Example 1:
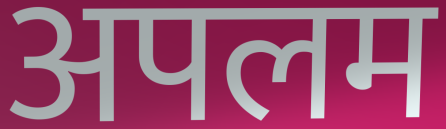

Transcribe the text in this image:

अपलम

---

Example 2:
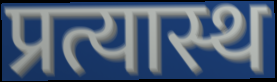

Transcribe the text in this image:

प्रत्यास्थ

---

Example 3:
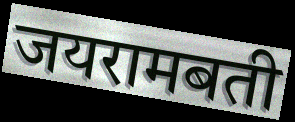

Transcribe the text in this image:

जयरामबती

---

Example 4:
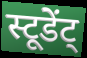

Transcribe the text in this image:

स्टूडेंट्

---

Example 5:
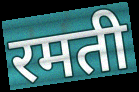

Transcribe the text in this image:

रमती